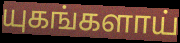
யுகங்களாய்